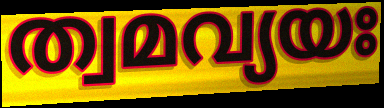
ത്വമവ്യയഃ